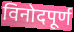
विनोदपूर्ण